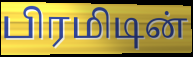
பிரமிடின்